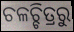
ଚଳଚ୍ଚିତ୍ରରୁ